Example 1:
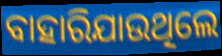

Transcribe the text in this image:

ବାହାରିଯାଉଥିଲେ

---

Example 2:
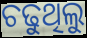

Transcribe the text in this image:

ଚଢୁଥିଲୁ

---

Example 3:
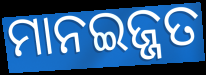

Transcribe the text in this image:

ମାନଇଜ୍ଜତ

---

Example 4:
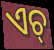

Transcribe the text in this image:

ଏଚ୍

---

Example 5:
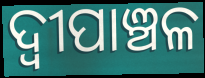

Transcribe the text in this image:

ଦ୍ୱୀପାଞ୍ଚଳ